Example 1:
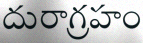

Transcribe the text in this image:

దురాగ్రహం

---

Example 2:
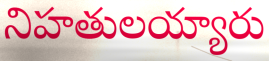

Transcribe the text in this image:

నిహతులయ్యారు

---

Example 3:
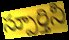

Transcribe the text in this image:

స్పూర్తినీ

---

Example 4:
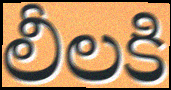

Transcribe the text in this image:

లీలకి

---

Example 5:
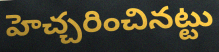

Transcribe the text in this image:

హెచ్చరించినట్టు